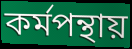
কর্মপন্থায়